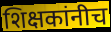
शिक्षकांनीच